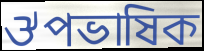
ঔপভাষিক